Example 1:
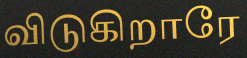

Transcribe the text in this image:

விடுகிறாரே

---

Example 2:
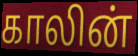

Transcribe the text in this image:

காலின்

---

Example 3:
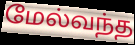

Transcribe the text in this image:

மேல்வந்த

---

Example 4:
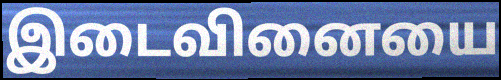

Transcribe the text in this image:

இடைவினையை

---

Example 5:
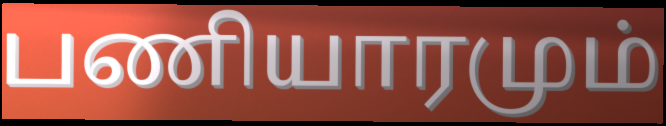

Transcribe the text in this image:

பணியாரமும்